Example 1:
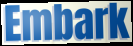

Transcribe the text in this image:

Embark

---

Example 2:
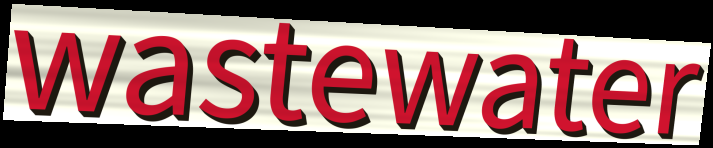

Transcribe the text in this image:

wastewater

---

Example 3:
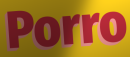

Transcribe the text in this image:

Porro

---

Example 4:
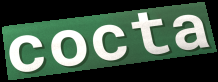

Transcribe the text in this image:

cocta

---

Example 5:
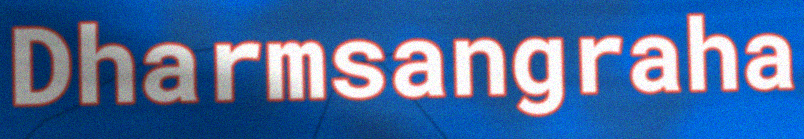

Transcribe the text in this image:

Dharmsangraha